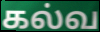
கல்வ